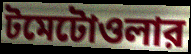
টমেটোওলার